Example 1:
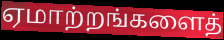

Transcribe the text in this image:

ஏமாற்றங்களைத்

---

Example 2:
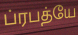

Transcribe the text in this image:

ப்ரபத்யே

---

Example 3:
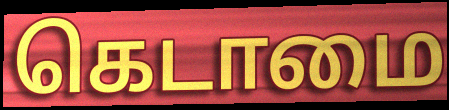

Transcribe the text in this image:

கெடாமை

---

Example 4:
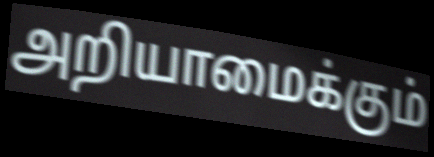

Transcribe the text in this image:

அறியாமைக்கும்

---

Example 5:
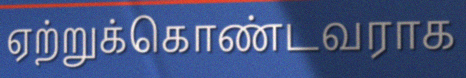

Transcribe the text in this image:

ஏற்றுக்கொண்டவராக